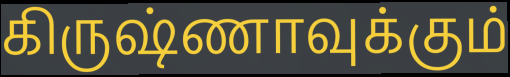
கிருஷ்ணாவுக்கும்